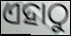
ଏହାଠୁ